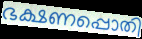
ഭക്ഷണപ്പൊതി